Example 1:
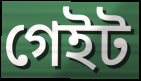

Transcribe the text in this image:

গেইট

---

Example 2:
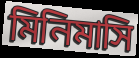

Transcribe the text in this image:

মিনিমাসি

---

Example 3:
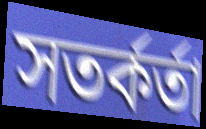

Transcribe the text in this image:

সতর্কর্তা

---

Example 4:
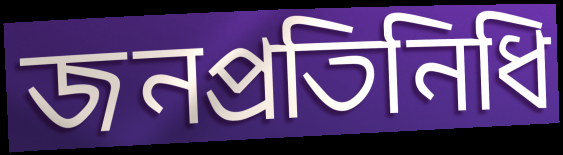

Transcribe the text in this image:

জনপ্রতিনিধি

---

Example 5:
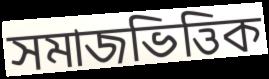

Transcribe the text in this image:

সমাজভিত্তিক